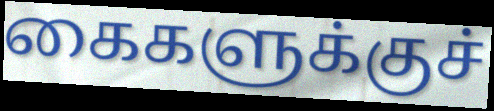
கைகளுக்குச்